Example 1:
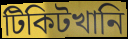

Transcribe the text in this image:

টিকিটখানি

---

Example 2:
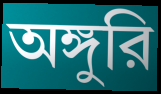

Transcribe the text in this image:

অঙ্গুরি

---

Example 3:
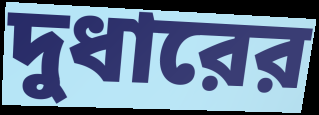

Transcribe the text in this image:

দুধারের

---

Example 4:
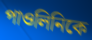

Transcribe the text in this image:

পাওলিনিকে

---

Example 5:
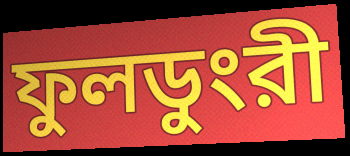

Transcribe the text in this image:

ফুলডুংরী